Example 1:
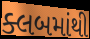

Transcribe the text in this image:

ક્લબમાંથી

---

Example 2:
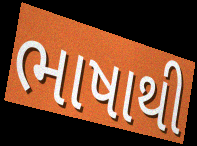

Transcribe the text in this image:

ભાષાથી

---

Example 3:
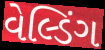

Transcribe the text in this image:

વેલ્ડિંગ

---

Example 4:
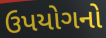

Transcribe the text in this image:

ઉપયોગનો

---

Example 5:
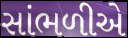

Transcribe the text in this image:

સાંભળીએ